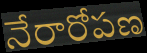
నేరారోపణ